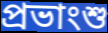
প্রভাংশু